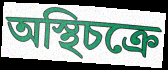
অস্থিচক্রে